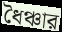
ধৈঞ্চার